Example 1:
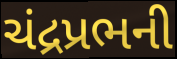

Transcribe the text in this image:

ચંદ્રપ્રભની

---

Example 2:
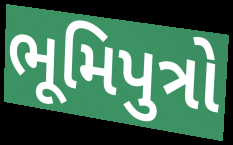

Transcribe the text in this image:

ભૂમિપુત્રો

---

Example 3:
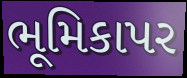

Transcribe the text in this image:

ભૂમિકાપર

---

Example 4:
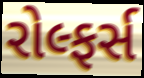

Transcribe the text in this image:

રોલ્ફર્સ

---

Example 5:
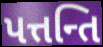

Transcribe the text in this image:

પત્તન્તિ